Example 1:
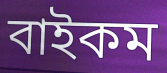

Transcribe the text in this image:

বাইকম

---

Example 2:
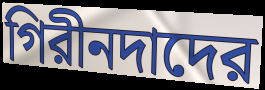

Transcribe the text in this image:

গিরীনদাদের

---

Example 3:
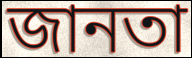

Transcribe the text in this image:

জানতা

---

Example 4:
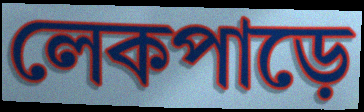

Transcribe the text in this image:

লেকপাড়ে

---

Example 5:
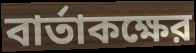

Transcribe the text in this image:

বার্তাকক্ষের